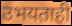
उभयताही